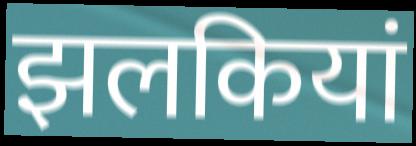
झलकियां